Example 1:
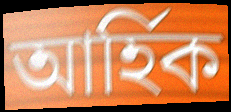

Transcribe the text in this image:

আৰ্হিক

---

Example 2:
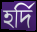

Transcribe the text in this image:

হৰ্দি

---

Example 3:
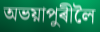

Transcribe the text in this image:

অভয়াপুৰীলৈ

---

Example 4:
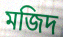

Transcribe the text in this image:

মজিদ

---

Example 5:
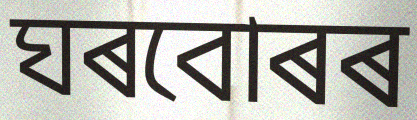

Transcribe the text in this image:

ঘৰবোৰৰ